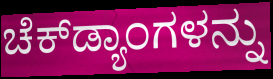
ಚೆಕ್‌ಡ್ಯಾಂಗಳನ್ನು